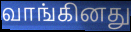
வாங்கினது